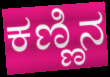
ಕಣ್ಣಿನ